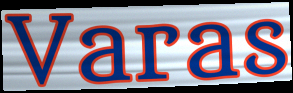
Varas